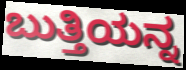
ಬುತ್ತಿಯನ್ನ